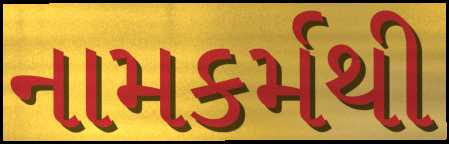
નામકર્મથી